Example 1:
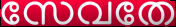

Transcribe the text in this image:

സേവതേ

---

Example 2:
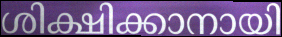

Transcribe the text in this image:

ശിക്ഷിക്കാനായി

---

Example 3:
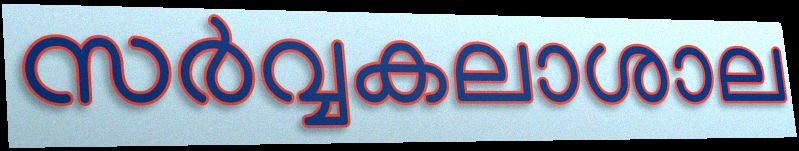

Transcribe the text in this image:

സർവ്വകലാശാല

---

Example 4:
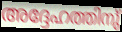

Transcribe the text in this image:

അദ്ദേഹത്തിനു്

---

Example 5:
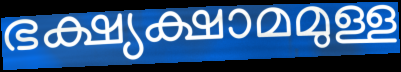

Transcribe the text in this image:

ഭക്ഷ്യക്ഷാമമുള്ള